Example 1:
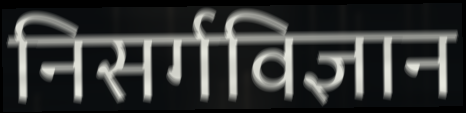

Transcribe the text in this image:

निसर्गविज्ञान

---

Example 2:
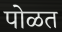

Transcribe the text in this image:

पोळत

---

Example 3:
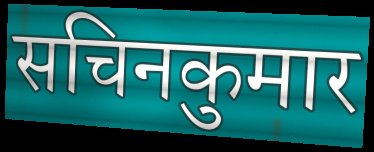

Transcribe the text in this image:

सचिनकुमार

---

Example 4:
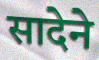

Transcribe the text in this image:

सादेने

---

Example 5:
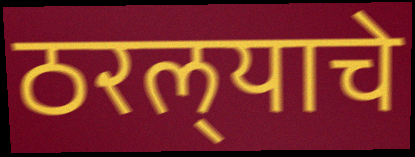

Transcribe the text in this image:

ठरल्याचे